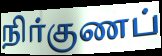
நிர்குணப்